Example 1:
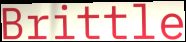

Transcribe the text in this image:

Brittle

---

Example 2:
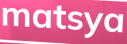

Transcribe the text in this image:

matsya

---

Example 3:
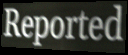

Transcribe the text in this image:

Reported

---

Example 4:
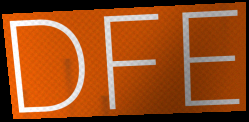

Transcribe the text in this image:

DFE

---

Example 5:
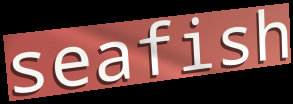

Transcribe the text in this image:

seafish